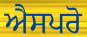
ਐਸਪਰੋ